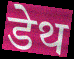
डेथ